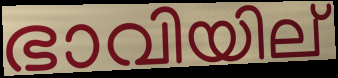
ഭാവിയില്